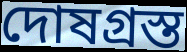
দোষগ্রস্ত